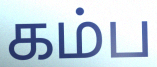
கம்ப